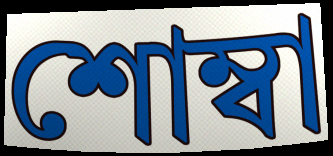
শোম্বা